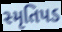
સ્મૃતિપડ